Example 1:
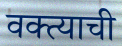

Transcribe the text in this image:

वक्त्याची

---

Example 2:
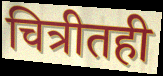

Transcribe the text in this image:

चित्रीतही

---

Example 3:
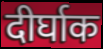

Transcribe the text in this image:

दीर्घाक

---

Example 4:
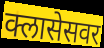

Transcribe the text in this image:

क्लासेसवर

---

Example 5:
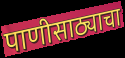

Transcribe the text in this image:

पाणीसाठ्याचा